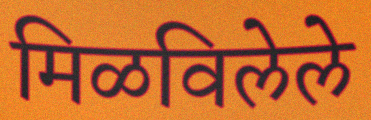
मिळविलेले